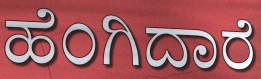
ಹೆಂಗಿದಾರೆ